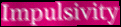
Impulsivity